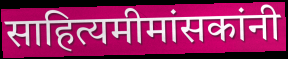
साहित्यमीमांसकांनी